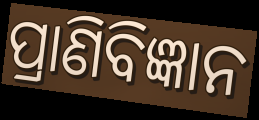
ପ୍ରାଣିବିଜ୍ଞାନ